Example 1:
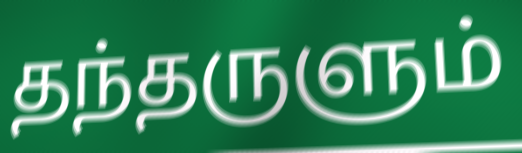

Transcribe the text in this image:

தந்தருளும்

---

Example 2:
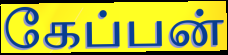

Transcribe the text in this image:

கேப்பன்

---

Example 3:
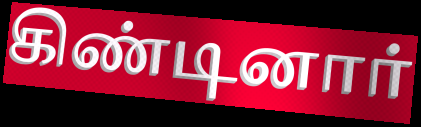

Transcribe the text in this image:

கிண்டினார்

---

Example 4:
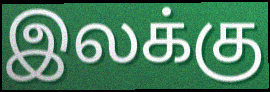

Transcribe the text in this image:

இலக்கு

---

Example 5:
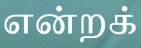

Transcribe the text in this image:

என்றக்